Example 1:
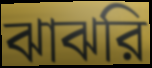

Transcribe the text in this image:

ঝাঝরি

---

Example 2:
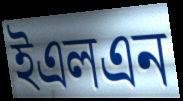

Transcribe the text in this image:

ইএলএন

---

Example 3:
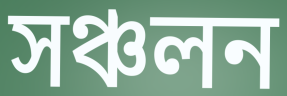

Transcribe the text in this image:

সঞ্চলন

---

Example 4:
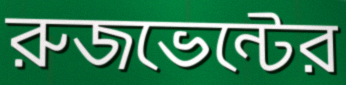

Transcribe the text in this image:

রুজভেন্টের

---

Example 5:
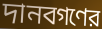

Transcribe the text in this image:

দানবগণের